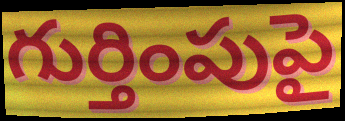
గుర్తింపుపై